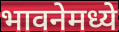
भावनेमध्ये